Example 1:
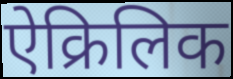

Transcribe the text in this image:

ऐक्रिलिक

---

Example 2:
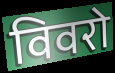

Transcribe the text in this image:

विवरो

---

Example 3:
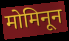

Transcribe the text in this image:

मोमिनून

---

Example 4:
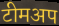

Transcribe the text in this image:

टीमअप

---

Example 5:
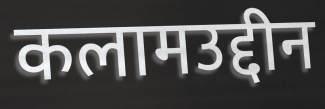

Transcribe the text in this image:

कलामउद्दीन